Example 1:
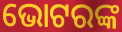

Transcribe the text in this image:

ଭୋଟରଙ୍କ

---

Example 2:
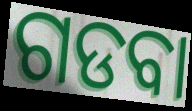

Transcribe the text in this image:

ଗଡବା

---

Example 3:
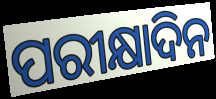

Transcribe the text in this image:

ପରୀକ୍ଷାଦିନ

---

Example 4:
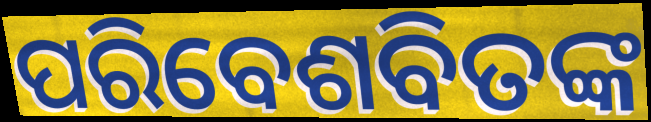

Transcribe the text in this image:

ପରିବେଶବିତଙ୍କ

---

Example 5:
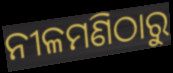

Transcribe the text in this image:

ନୀଳମଣିଠାରୁ